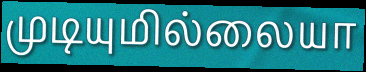
முடியுமில்லையா